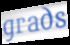
grads